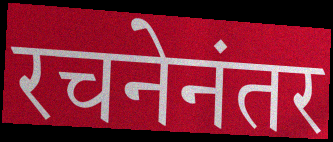
रचनेनंतर